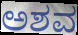
ಅಶವ